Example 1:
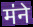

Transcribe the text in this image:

म॑ने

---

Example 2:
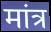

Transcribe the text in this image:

मांत्र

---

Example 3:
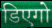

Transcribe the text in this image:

डिएगो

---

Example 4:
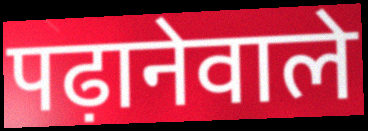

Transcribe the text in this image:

पढ़ानेवाले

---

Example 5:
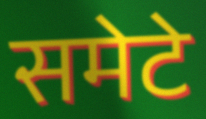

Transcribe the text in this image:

समेटे